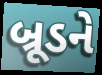
બ્રૂડને